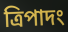
ত্রিপাদং